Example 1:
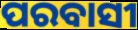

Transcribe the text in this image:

ପରବାସୀ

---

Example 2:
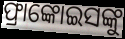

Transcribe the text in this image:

ଫ୍ରାଙ୍କୋଇସଙ୍କୁ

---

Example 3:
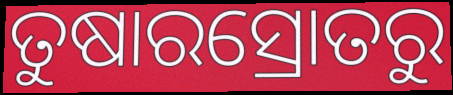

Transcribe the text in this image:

ତୁଷାରସ୍ରୋତରୁ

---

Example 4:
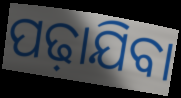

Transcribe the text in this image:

ପଢ଼ାଯିବା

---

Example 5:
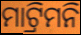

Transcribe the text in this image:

ମାଟ୍ରିମନି